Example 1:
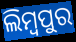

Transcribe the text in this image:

ଲିମ୍ବପୁର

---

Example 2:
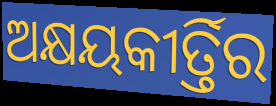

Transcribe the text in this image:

ଅକ୍ଷୟକୀର୍ତ୍ତିର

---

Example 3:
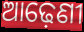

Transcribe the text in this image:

ଆଢ଼େଣୀ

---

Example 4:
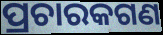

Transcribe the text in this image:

ପ୍ରଚାରକଗଣ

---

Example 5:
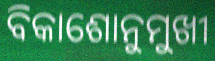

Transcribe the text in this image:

ବିକାଶୋନୁମୁଖୀ